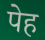
पेह